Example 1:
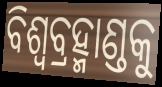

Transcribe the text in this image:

ବିଶ୍ବବ୍ରହ୍ମାଣ୍ଡକୁ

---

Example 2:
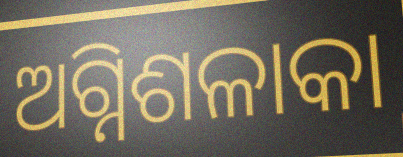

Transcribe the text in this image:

ଅଗ୍ନିଶଳାକା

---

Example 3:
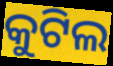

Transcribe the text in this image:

କୁଟିଲ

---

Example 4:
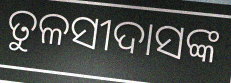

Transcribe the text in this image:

ତୁଳସୀଦାସଙ୍କ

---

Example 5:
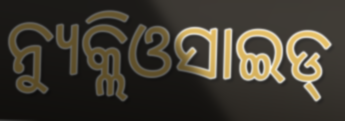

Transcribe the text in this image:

ନ୍ୟୁକ୍ଲିଓସାଇଡ୍